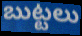
బుట్టలు